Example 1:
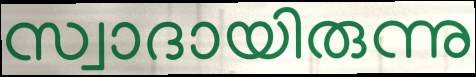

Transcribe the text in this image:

സ്വാദായിരുന്നു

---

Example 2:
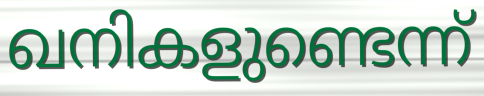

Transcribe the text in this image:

ഖനികളുണ്ടെന്ന്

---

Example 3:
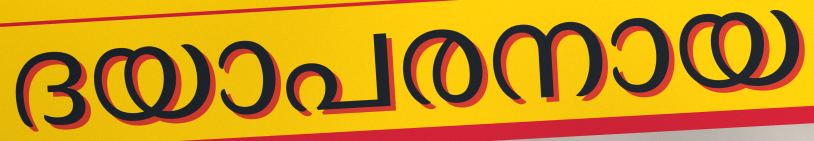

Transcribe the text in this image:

ദയാപരനായ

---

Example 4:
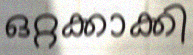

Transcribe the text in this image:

ഒറ്റക്കാക്കി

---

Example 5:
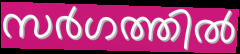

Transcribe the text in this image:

സർഗത്തിൽ